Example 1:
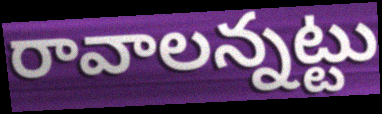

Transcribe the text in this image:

రావాలన్నట్టు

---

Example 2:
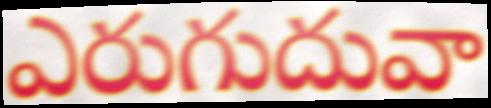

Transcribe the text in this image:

ఎరుగుదువా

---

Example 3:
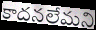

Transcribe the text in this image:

కాదనలేమని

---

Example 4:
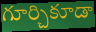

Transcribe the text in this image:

గూర్చికూడా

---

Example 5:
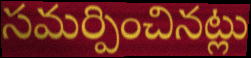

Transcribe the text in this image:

సమర్పించినట్లు